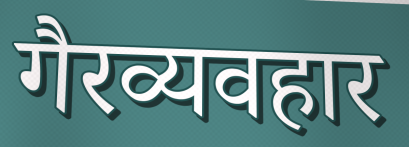
गैरव्यवहार